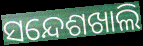
ସନ୍ଦେଶଖାଲି